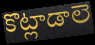
కొట్లాడాలె